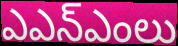
ఎఎన్ఎంలు